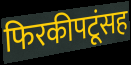
फिरकीपटूंसह